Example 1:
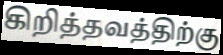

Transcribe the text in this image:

கிறித்தவத்திற்கு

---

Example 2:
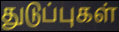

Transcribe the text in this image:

துடுப்புகள்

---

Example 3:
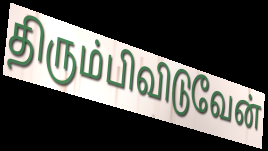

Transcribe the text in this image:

திரும்பிவிடுவேன்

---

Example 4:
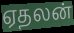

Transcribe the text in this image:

ஏதலன்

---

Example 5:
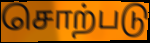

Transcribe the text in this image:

சொற்படு